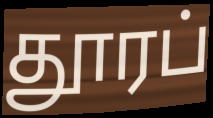
தூரப்